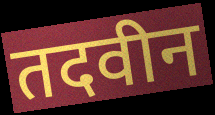
तदवीन